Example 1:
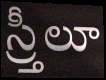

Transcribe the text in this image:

స్ర్తీలూ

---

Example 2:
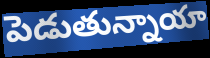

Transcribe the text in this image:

పెడుతున్నాయా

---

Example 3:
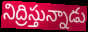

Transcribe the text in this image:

నిద్రిస్తున్నాడు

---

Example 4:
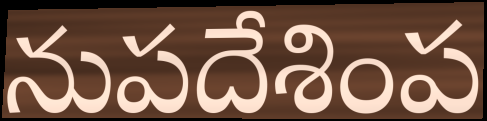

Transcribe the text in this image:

నుపదేశింప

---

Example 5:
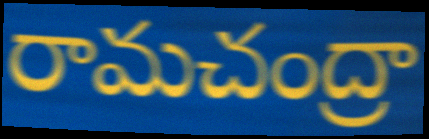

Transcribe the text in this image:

రామచంద్రా